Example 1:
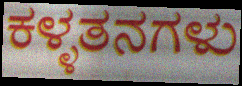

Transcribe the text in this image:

ಕಳ್ಳತನಗಳು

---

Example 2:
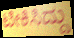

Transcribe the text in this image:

ಟೀಕಿಸಿದ್ದು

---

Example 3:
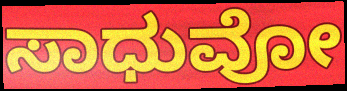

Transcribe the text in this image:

ಸಾಧುವೋ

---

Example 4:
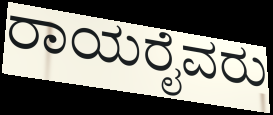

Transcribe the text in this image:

ರಾಯರೈವರು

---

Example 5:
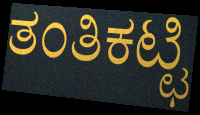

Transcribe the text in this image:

ತಂತಿಕಟ್ಟಿ